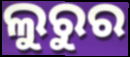
ଲୁରୁର